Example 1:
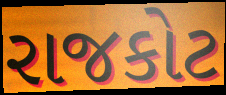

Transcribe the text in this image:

રાજકોટ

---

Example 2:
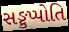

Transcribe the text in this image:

સઙ્કપ્પોતિ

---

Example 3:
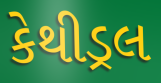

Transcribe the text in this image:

કેથીડ્રલ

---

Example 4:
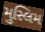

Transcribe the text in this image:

મુસ્લિમ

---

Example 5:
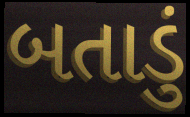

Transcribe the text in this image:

બતાડું